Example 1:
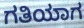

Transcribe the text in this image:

ಗತಿಯಾಗ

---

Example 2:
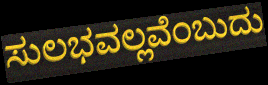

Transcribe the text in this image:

ಸುಲಭವಲ್ಲವೆಂಬುದು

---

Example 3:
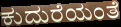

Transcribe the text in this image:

ಕುದುರೆಯಂತೆ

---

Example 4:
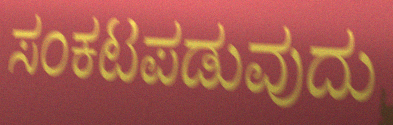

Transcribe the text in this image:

ಸಂಕಟಪಡುವುದು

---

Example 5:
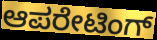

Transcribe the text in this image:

ಆಪರೇಟಿಂಗ್